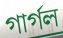
গার্গল